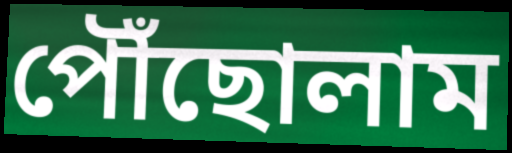
পৌঁছোলাম